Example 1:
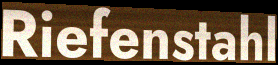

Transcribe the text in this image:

Riefenstahl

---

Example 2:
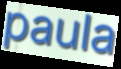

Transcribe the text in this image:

paula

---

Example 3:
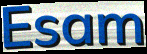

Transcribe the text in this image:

Esam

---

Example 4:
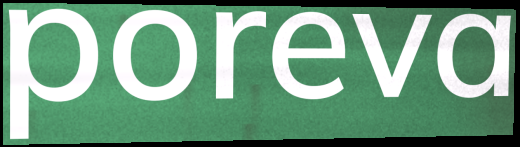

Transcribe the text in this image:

poreva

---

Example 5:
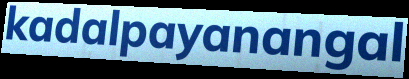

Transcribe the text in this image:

kadalpayanangal